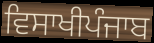
ਵਿਸਾਖੀਪੰਜਾਬ